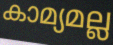
കാമ്യമല്ല